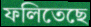
ফলিতেছে